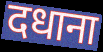
दधाना